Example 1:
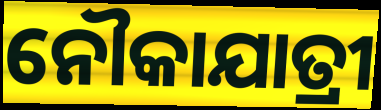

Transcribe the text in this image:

ନୌକାଯାତ୍ରୀ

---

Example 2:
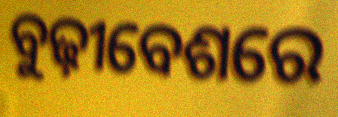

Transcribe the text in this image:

ବୁଢ଼ୀବେଶରେ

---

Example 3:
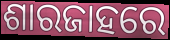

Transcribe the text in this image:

ଶାରଜାହରେ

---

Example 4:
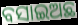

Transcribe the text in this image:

ବସାଇଅଛ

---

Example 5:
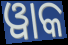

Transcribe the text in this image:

ୱାକ